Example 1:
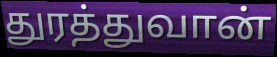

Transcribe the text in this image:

துரத்துவான்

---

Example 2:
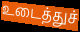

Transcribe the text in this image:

உடைத்துச்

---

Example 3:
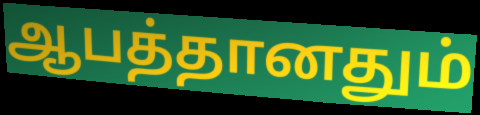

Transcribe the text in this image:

ஆபத்தானதும்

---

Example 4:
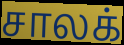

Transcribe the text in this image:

சாலக்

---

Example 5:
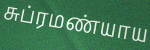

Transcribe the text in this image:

சுப்ரமண்யாய